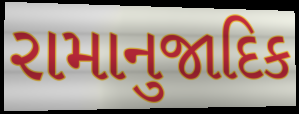
રામાનુજાદિક